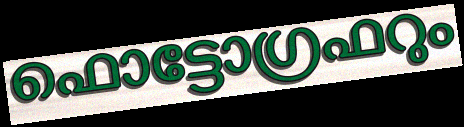
ഫൊട്ടോഗ്രഫറും